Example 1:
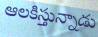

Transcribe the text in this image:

ఆలకిస్తున్నాడు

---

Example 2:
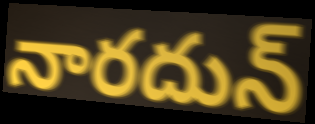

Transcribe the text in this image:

నారదున్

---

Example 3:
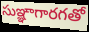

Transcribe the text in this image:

సుఞ్ఞాగారగతో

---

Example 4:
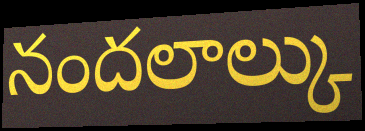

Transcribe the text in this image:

నందలాల్కు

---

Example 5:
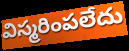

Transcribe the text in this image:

విస్మరింపలేదు